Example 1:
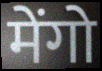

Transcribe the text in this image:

मेंगो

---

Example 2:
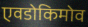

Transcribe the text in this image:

एवडोकिमोव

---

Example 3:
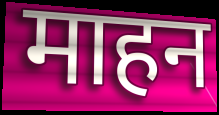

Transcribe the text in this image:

माहन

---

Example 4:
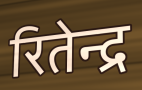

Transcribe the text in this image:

रितेन्द्र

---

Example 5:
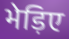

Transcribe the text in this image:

भेड़िए